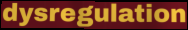
dysregulation